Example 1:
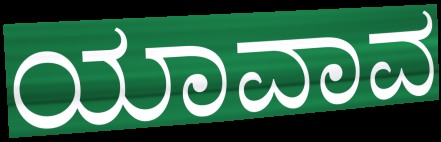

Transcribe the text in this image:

ಯಾವಾವ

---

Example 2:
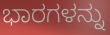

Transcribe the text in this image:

ಭಾರಗಳನ್ನು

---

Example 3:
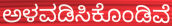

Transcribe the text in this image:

ಅಳವಡಿಸಿಕೊಂಡಿವೆ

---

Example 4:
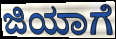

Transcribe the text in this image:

ಜಿಯಾಗೆ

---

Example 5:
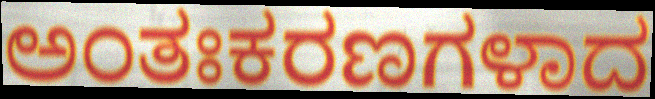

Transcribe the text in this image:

ಅಂತಃಕರಣಗಳಾದ